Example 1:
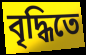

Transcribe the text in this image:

বৃদ্ধিতে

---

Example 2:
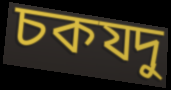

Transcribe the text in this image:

চকযদু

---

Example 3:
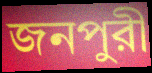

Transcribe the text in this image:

জনপুরী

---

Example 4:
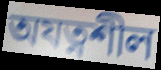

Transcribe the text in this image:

অযত্নশীল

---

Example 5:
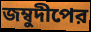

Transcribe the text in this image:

জম্বুদীপের